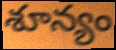
శూన్యం